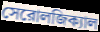
সেরোলজিক্যাল